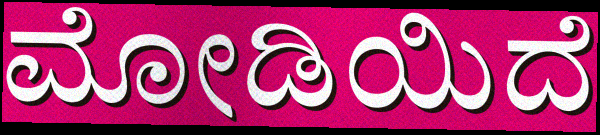
ಮೋಡಿಯಿದೆ